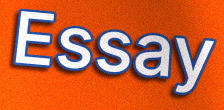
Essay